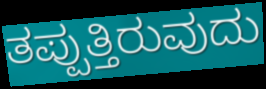
ತಪ್ಪುತ್ತಿರುವುದು